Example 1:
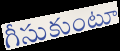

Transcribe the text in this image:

గీసుకుంటూ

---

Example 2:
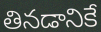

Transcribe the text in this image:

తినడానికే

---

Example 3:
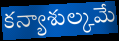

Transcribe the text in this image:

కన్యాశుల్కమే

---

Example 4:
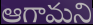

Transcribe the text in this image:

ఆగామని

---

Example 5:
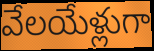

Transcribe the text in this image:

వేలయేళ్లుగా